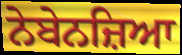
ਨੇਬੇਨਜ਼ਿਆ